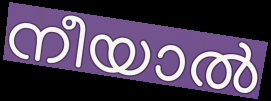
നീയാൽ